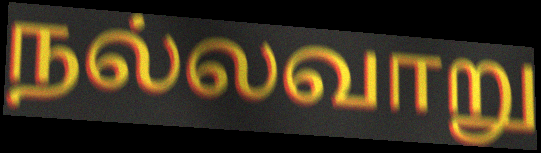
நல்லவாறு